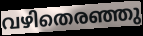
വഴിതെരഞ്ഞു